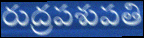
రుద్రపశుపతి